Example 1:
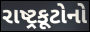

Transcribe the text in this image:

રાષ્ટ્રકૂટોનો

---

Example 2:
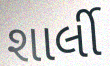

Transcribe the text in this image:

શાર્લી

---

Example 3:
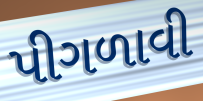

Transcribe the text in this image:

પીગળાવી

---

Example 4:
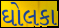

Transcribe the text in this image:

ઘોલકા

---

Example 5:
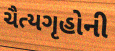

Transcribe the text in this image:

ચૈત્યગૃહોની